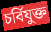
চৰ্বিযুক্ত